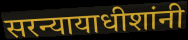
सरन्यायाधीशांनी